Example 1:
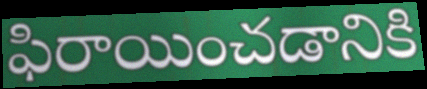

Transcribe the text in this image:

ఫిరాయించడానికి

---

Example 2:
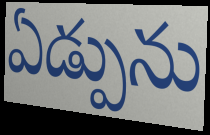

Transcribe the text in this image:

ఏడ్పును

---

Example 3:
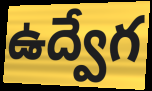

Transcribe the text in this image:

ఉద్వేగ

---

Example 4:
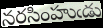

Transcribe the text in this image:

నరసింహుఁడు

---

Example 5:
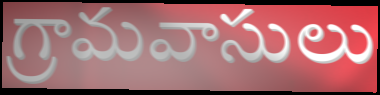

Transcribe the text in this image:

గ్రామవాసులు